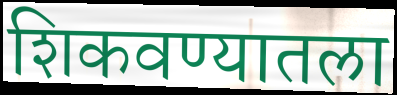
शिकवण्यातला